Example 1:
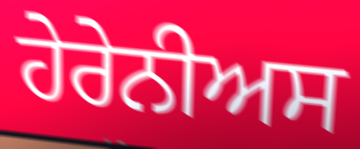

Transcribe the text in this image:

ਹੇਰੇਨੀਅਸ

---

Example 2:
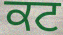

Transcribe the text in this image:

ਕਟ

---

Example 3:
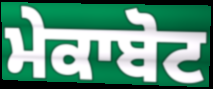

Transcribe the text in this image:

ਮੇਕਾਬੋਟ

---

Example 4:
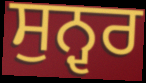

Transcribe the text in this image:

ਸੁਨ੍ਦਰ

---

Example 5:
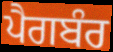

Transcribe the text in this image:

ਪੈਗਬੰਰ